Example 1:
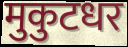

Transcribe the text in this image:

मुकुटधर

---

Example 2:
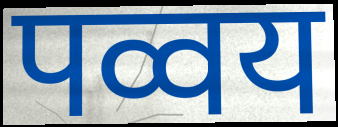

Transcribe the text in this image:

पव्वय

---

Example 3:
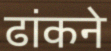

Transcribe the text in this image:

ढांकने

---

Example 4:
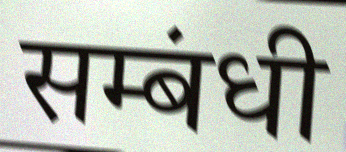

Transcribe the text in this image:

सम्बंधी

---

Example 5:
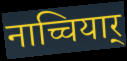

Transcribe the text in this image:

नाच्चियार्